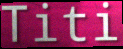
Titi